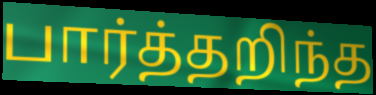
பார்த்தறிந்த